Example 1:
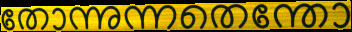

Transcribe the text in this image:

തോന്നുന്നതെന്തോ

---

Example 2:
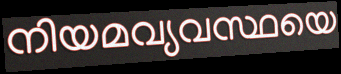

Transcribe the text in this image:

നിയമവ്യവസ്ഥയെ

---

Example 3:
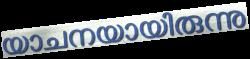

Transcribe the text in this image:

യാചനയായിരുന്നു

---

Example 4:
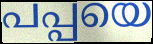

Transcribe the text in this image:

പപ്പയെ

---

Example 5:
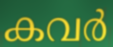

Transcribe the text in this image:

കവർ